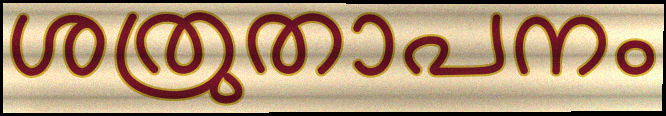
ശത്രുതാപനം